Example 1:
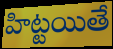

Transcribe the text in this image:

హిట్టయితే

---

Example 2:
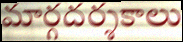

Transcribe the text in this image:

మార్గదర్శకాలు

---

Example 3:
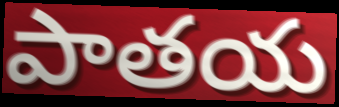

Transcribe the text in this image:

పాతయ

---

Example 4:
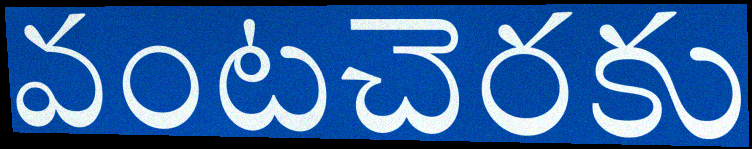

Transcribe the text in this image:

వంటచెరకు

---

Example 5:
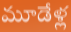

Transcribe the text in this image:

మూడేళ్ల